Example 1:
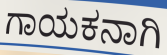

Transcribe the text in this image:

ಗಾಯಕನಾಗಿ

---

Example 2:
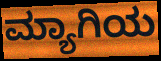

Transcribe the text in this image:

ಮ್ಯಾಗಿಯ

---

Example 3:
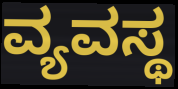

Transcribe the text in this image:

ವ್ಯವಸ್ಥ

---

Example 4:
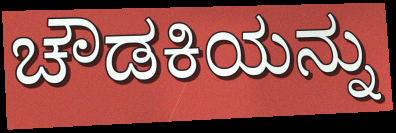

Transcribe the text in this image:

ಚೌಡಕಿಯನ್ನು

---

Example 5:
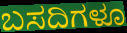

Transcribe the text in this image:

ಬಸದಿಗಳೂ